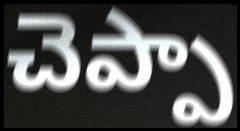
చెప్పా